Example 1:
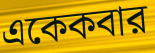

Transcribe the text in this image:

একেকবার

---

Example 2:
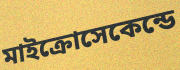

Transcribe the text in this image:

মাইক্রোসেকেন্ডে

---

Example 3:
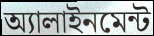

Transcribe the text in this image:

অ্যালাইনমেন্ট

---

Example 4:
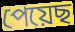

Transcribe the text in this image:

পেয়েছ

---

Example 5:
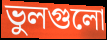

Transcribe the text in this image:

ভুলগুলো